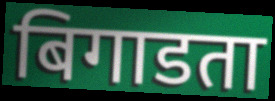
बिगाडता